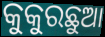
କୁକୁରଛୁଆ